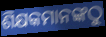
ଶିକ୍ଷକମାନଙ୍କଠୁ